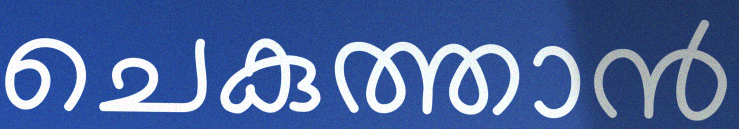
ചെകുത്താൻ